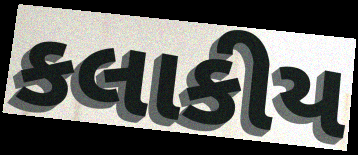
કલાકીય